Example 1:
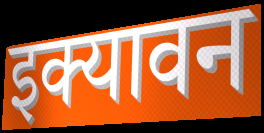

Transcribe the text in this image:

इक्यावन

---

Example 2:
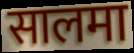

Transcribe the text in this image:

सालमा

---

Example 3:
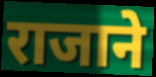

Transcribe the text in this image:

राजाने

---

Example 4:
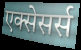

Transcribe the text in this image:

एक्सेसर्स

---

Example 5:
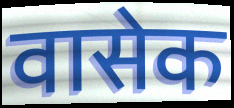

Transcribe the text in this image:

वासेक